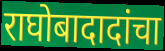
राघोबादादांचा